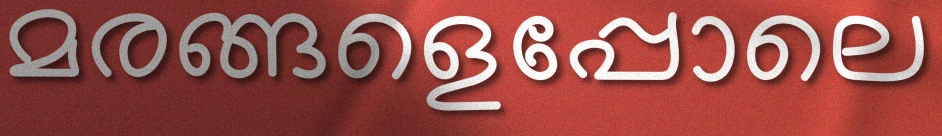
മരങ്ങളെപ്പോലെ